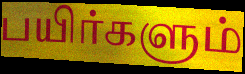
பயிர்களும்